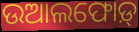
ଉଆଲଫୋଡ଼୍